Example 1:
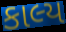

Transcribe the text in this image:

કાલ્ય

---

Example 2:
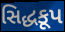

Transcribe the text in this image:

સિદ્ધકૂપ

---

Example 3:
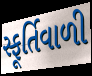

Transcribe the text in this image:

સ્ફૂર્તિવાળી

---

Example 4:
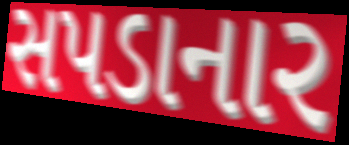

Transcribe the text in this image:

સપડાનાર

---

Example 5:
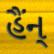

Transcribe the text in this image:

હૈંન્